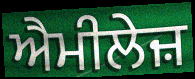
ਐਮੀਲੇਜ਼